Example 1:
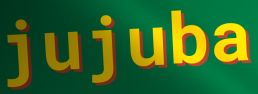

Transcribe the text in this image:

jujuba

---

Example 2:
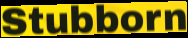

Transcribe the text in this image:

Stubborn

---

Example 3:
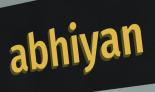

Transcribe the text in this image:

abhiyan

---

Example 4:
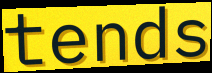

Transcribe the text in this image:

tends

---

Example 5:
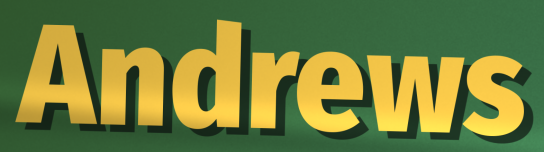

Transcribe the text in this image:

Andrews